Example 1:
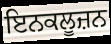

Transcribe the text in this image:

ਇਨਕਲੂਜ਼ਨ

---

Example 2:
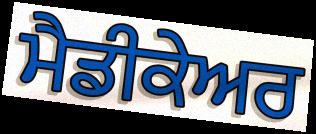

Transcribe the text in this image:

ਮੈਡੀਕੇਅਰ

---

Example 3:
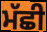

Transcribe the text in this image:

ਮੱਛੀ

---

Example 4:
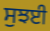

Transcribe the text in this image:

ਸੁਝਈ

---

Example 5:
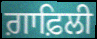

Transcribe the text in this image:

ਗ਼ਾਫ਼ਿਲੀ